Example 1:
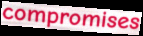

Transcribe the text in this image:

compromises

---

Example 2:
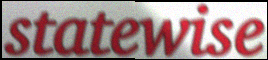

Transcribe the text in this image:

statewise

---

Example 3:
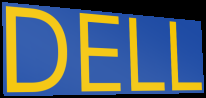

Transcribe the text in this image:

DELL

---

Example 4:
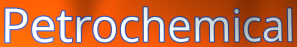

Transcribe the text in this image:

Petrochemical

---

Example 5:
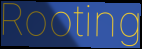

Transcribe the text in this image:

Rooting